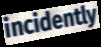
incidently